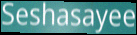
Seshasayee